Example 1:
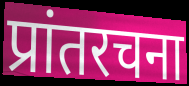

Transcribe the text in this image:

प्रांतरचना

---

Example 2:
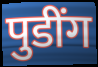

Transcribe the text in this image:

पुडींग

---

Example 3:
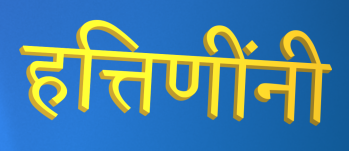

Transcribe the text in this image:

हत्तिणींनी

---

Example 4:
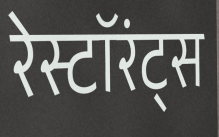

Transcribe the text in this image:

रेस्टॉरंट्स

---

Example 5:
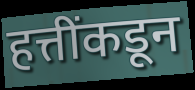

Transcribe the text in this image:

हत्तींकडून